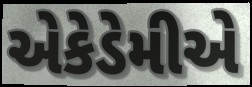
એકેડેમીએ